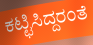
ಕಟ್ಟಿಸಿದ್ದರಂತೆ